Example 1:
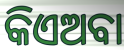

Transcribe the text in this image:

କିଏଅବା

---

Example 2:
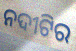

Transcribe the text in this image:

ନଦୀଟିର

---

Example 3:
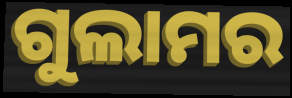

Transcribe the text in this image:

ଗୁଲାମର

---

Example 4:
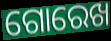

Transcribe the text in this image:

ଗୋରେଖ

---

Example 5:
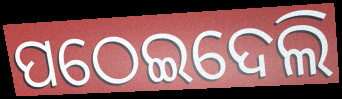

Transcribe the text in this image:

ପଠେଇଦେଲି